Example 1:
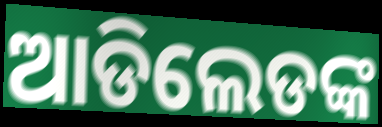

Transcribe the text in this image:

ଆଡିଲେଡଙ୍କ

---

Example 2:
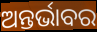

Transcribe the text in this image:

ଅନ୍ତର୍ଭାବର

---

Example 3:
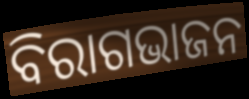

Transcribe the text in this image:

ବିରାଗଭାଜନ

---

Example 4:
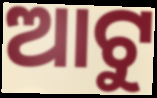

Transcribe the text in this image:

ଆଟୁ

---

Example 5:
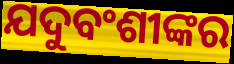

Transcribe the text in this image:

ଯଦୁବଂଶୀଙ୍କର